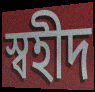
স্বহীদ